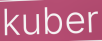
kuber